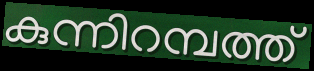
കുന്നിറമ്പത്ത്